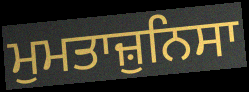
ਮੁਮਤਾਜ਼ੁਨਿਸਾ